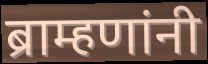
ब्राम्हणांनी